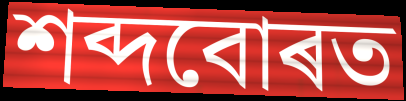
শব্দবোৰত